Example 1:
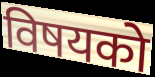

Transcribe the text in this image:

विषयको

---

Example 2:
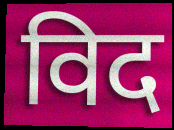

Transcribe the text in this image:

विद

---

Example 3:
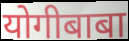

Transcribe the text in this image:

योगीबाबा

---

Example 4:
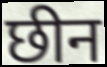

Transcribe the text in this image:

छीन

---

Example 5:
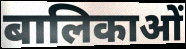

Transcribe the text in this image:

बालिकाओं